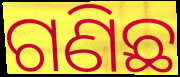
ଗଣିଛ